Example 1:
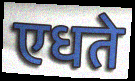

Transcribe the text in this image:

एधते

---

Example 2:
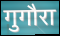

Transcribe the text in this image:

गुगौरा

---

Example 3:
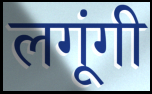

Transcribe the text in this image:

लगूंगी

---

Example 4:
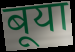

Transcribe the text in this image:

बूया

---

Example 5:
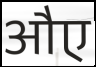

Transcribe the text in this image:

औए